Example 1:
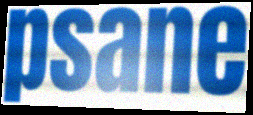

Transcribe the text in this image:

psane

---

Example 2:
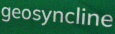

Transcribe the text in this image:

geosyncline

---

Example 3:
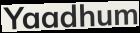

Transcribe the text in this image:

Yaadhum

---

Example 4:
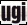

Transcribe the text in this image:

ugi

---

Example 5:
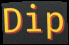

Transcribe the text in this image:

Dip